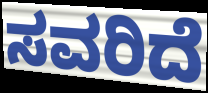
ಸವರಿದೆ